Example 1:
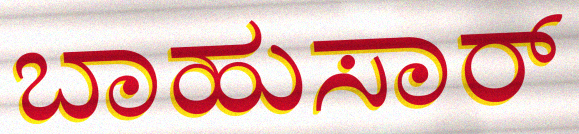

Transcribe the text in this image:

ಬಾಹುಸಾರ್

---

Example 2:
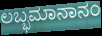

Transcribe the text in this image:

ಲಬ್ಭಮಾನಾನಂ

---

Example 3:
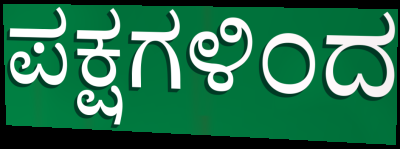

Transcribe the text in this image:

ಪಕ್ಷಗಳಿಂದ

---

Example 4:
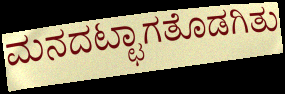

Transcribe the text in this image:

ಮನದಟ್ಟಾಗತೊಡಗಿತು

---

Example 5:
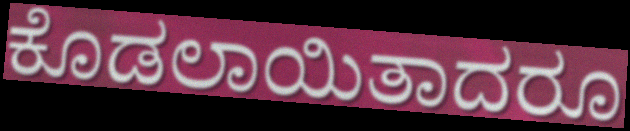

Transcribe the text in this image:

ಕೊಡಲಾಯಿತಾದರೂ